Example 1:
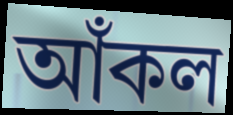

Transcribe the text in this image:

আঁকল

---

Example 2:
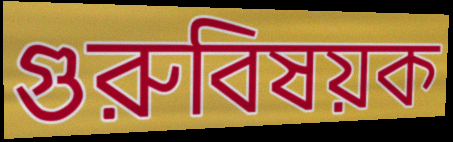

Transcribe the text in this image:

গুরুবিষয়ক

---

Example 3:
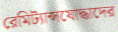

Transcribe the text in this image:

রেমিট্যান্সযোদ্ধাদের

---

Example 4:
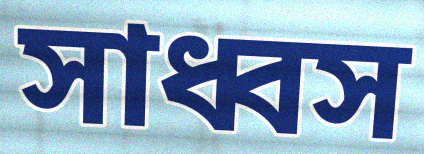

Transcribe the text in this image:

সাধ্বস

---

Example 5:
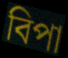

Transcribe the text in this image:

বিপা